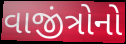
વાજીંત્રોનો